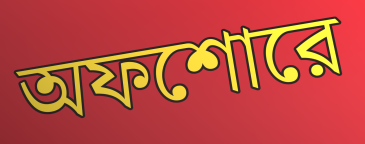
অফশোরে